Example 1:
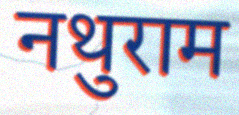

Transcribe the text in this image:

नथुराम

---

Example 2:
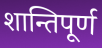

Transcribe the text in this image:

शान्तिपूर्ण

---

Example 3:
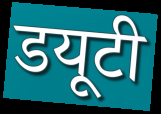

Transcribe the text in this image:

डयूटी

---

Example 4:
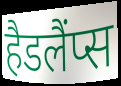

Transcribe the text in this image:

हैडलैंप्स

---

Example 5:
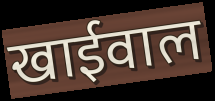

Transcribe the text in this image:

खाईवाल